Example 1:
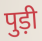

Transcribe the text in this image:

पुड़ी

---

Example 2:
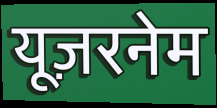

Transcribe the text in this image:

यूज़रनेम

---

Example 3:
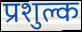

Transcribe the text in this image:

प्रशुल्क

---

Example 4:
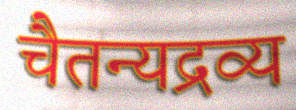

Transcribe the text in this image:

चैतन्यद्रव्य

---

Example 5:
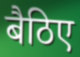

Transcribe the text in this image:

बैठिए